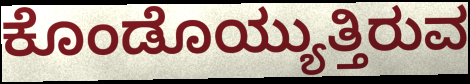
ಕೊಂಡೊಯ್ಯುತ್ತಿರುವ